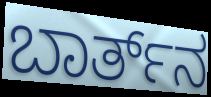
ಬಾರ್ತ್‌ನ